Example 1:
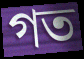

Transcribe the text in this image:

গত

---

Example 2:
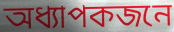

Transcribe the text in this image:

অধ্যাপকজনে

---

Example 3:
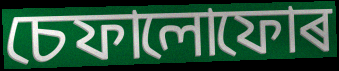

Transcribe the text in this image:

চেফালোফোৰ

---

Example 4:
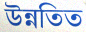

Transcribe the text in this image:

উন্নতিত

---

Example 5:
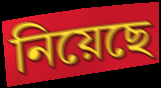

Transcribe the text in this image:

নিয়েছে